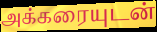
அக்கரையுடன்